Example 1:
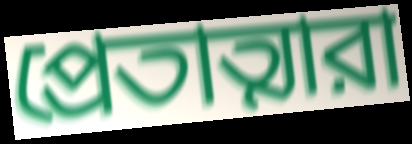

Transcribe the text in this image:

প্রেতাত্মারা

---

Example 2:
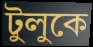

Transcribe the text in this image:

টুলুকে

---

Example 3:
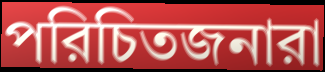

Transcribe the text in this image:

পরিচিতজনারা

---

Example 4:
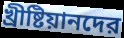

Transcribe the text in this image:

খ্রীষ্টিয়ানদের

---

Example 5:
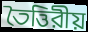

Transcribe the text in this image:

তৈত্তিরীয়